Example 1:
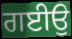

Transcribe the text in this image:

ਗਈਉ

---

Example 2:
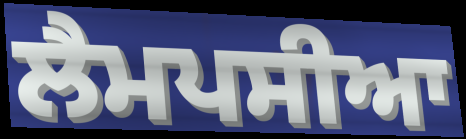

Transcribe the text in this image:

ਲੈਮਪਸੀਆ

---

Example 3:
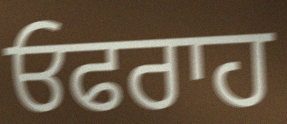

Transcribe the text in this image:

ਓਫਰਾਹ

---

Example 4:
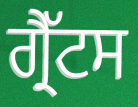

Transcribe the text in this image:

ਗ੍ਰੈੱਟਸ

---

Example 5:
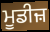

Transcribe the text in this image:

ਮੂਡੀਜ਼